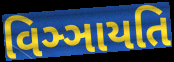
વિઞ્ઞાયતિ